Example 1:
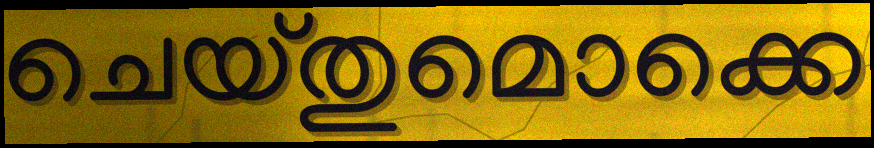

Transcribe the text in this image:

ചെയ്തുമൊക്കെ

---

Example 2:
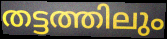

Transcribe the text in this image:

തട്ടത്തിലും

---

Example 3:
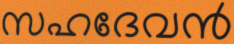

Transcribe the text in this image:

സഹദേവൻ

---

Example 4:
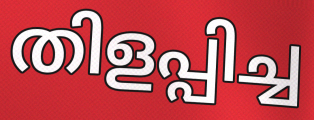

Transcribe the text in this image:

തിളപ്പിച്ച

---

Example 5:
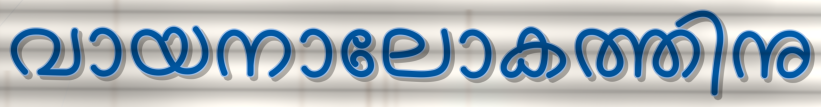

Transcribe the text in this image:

വായനാലോകത്തിനു